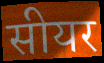
सीयर